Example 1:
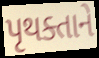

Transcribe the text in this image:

પૃથક્તાને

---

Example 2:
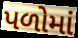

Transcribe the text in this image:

પળોમાં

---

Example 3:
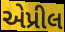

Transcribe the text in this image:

એપ્રીલ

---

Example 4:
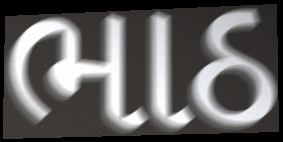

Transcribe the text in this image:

ભાઠ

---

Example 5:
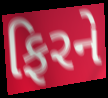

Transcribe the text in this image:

ફિરને